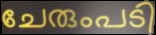
ചേരുംപടി